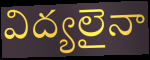
విద్యలైనా